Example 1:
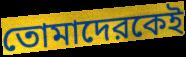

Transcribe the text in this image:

তোমাদেরকেই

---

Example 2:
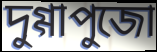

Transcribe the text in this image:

দুগ্গাপুজো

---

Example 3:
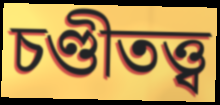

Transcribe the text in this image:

চণ্ডীতত্ত্ব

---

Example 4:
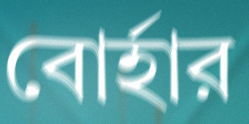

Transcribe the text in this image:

বোর্হার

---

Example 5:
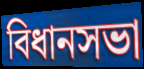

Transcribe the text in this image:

বিধানসভা